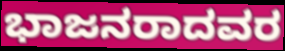
ಭಾಜನರಾದವರ